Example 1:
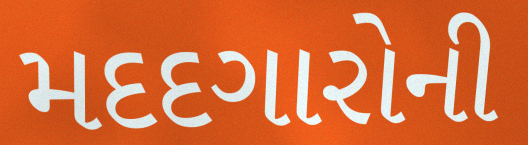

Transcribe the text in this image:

મદદગારોની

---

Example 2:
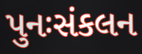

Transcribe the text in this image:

પુનઃસંકલન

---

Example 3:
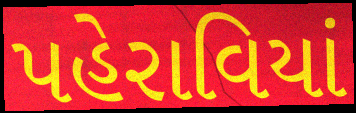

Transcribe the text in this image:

પહેરાવિયાં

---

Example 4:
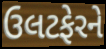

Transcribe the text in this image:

ઉલટફેરને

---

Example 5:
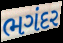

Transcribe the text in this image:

ભગંદર